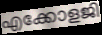
എക്കോളജി